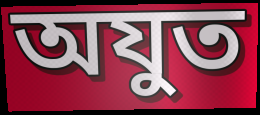
অযুত